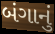
બંગાનું